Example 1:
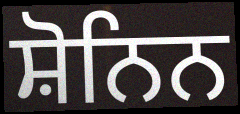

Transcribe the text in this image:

ਸ਼ੋਨਿਨ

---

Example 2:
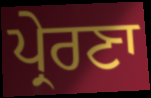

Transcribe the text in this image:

ਪ੍ਰੇਰਣਾ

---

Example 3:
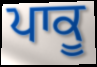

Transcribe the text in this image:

ਪਾਕੂ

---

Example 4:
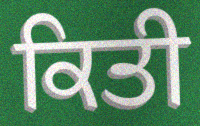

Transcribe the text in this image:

ਕਿਤੀ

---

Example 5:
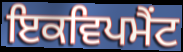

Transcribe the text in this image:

ਇਕਵਿਪਮੈਂਟ